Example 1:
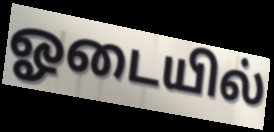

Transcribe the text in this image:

ஓடையில்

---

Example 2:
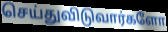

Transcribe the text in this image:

செய்துவிடுவார்களோ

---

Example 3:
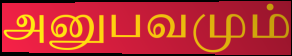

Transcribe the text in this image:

அனுபவமும்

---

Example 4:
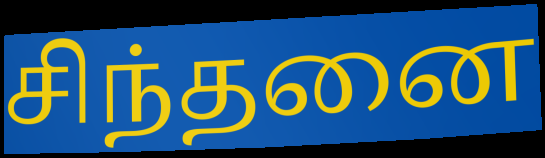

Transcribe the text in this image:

சிந்தனை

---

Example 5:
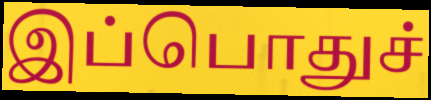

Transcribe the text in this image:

இப்பொதுச்